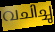
വചിച്ചു